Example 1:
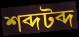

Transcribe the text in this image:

শব্দটব্দ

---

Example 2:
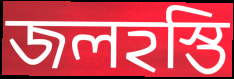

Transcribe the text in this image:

জলহস্তি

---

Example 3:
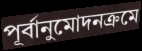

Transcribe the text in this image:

পূর্বানুমোদনক্রমে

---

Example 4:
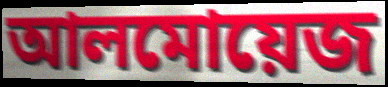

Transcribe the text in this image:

আলমোয়েজ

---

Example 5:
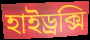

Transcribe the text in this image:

হাইড্রক্সি